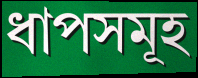
ধাপসমূহ